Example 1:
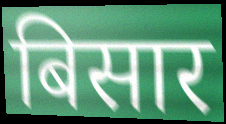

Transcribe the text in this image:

बिसार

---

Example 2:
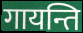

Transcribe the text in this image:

गायन्ति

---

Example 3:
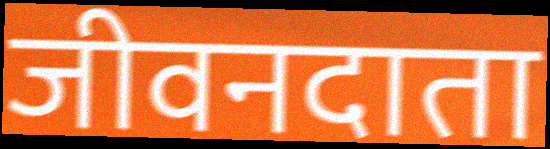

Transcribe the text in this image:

जीवनदाता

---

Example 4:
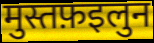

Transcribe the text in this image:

मुस्तफ़इलुन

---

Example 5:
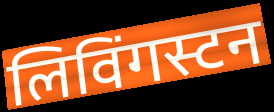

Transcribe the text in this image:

लिविंगस्टन